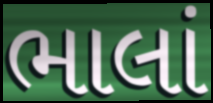
ભાલાં